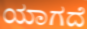
ಯಾಗದೆ